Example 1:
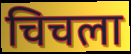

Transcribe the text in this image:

चिचला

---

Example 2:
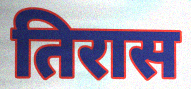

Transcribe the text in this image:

तिरास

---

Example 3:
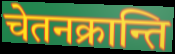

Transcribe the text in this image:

चेतनक्रान्ति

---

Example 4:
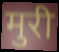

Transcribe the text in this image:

मुरी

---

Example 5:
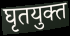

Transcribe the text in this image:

घृतयुक्त